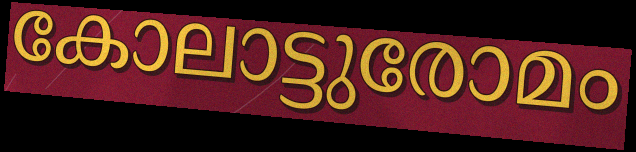
കോലാട്ടുരോമം